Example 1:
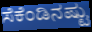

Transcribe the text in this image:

ಸೆಕೆಂಡಿನಷ್ಟು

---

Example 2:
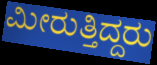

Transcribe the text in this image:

ಮೀರುತ್ತಿದ್ದರು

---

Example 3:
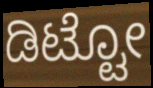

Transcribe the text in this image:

ಡಿಟ್ಟೋ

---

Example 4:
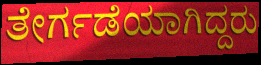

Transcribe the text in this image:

ತೇರ್ಗಡೆಯಾಗಿದ್ದರು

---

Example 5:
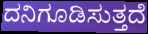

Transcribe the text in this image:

ದನಿಗೂಡಿಸುತ್ತದೆ